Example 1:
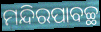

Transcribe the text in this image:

ମନ୍ଦିରପାବଚ୍ଛ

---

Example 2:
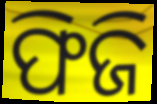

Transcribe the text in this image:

ଫିଜି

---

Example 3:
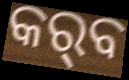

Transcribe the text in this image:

କର୍‌ବ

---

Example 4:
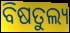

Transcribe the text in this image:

ବିଷତୁଲ୍ୟ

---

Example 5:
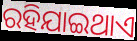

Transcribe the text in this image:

ରହିଯାଇଥାଏ